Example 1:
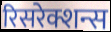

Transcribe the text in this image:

रिसरेक्शन्स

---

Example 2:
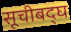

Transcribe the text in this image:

सूचीबद्घ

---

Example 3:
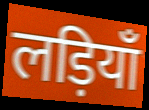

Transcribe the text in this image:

लड़ियाँ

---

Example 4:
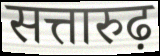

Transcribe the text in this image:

सत्तारुढ़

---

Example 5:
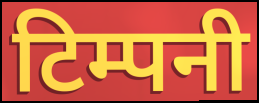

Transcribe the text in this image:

टिम्पनी